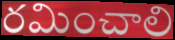
రమించాలి